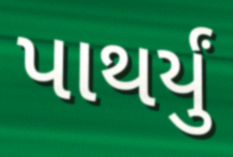
પાથર્યું